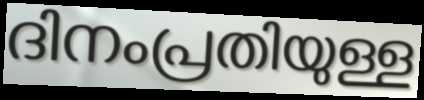
ദിനംപ്രതിയുള്ള